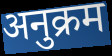
अनुक्रम